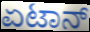
ಏಟಾನ್